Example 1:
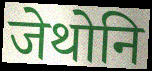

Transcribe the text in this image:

जेथोनि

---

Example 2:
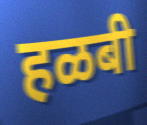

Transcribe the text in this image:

हळबी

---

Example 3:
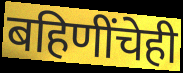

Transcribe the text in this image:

बहिणींचेही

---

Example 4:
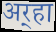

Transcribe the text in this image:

अर्हा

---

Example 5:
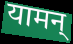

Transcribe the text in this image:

यामन्